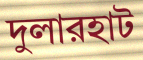
দুলারহাট